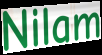
Nilam